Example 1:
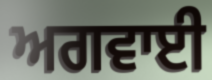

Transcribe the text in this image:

ਅਗਵਾਈ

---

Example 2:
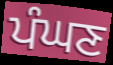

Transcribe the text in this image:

ਪੰਘਣ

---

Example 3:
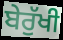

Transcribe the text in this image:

ਬੇਰੁੱਖੀ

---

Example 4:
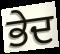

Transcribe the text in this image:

ਭੇਦ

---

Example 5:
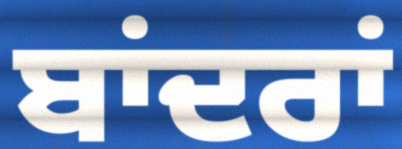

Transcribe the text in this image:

ਬਾਂਦਰਾਂ